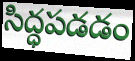
సిద్ధపడడం